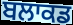
ਬਲਾਕਡ